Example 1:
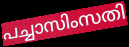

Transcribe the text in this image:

പച്ചാസിംസതി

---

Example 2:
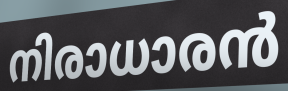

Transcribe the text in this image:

നിരാധാരൻ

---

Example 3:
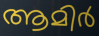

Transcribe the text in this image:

ആമിർ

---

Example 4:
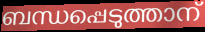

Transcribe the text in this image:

ബന്ധപ്പെടുത്താന്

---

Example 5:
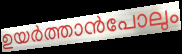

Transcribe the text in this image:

ഉയർത്താൻപോലും